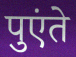
पुएंते